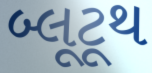
બ્લૂટૂથ